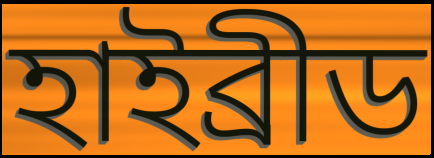
হাইব্ৰীড